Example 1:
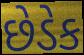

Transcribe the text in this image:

છેડેક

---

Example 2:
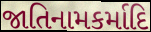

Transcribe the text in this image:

જાતિનામકર્માદિ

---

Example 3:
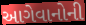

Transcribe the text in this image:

આગેવાનોની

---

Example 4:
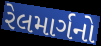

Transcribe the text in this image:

રેલમાર્ગનો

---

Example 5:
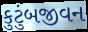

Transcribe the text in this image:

કુટુંબજીવન